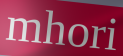
mhori